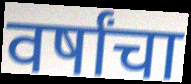
वर्षांचा